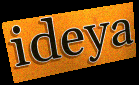
ideya